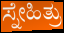
ಸ್ನೇಹಿತ್ರು